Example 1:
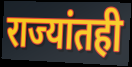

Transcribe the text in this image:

राज्यांतही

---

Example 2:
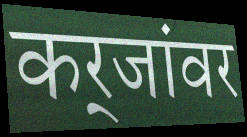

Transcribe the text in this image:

कर्जांवर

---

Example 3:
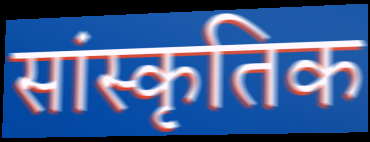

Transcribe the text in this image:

सांस्कृतिक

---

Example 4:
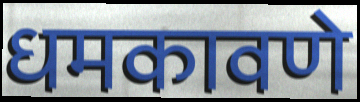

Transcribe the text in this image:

धमकावणे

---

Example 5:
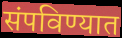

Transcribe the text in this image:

संपविण्यात